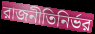
রাজনীতিনির্ভর